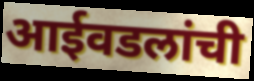
आईवडलांची